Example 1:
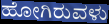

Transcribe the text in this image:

ಹೋಗಿರುವಳು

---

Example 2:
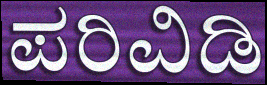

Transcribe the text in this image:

ಪರಿವಿಡಿ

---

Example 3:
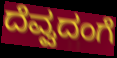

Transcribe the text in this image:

ದೆವ್ವದಂಗೆ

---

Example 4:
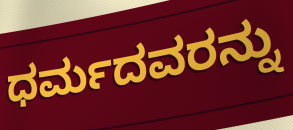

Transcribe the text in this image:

ಧರ್ಮದವರನ್ನು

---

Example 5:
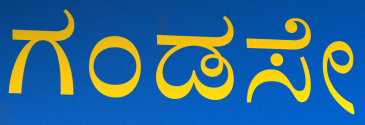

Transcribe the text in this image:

ಗಂಡಸೇ